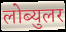
लोब्युलर